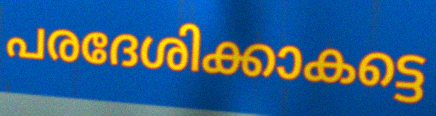
പരദേശിക്കാകട്ടെ